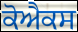
ਕੋਐਕਸ